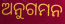
ଅନୁଗମନ